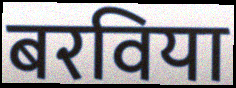
बरविया